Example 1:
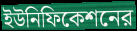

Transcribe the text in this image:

ইউনিফিকেশনের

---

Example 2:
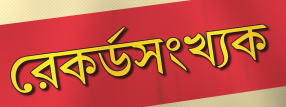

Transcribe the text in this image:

রেকর্ডসংখ্যক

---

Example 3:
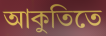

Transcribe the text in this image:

আকুতিতে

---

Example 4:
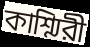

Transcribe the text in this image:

কাশ্মিরী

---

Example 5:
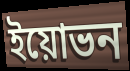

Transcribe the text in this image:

ইয়োভন